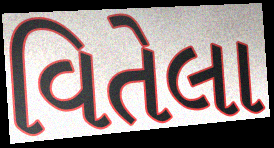
વિતેલા